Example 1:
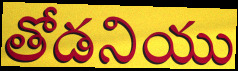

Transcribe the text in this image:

తోడనియు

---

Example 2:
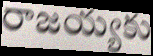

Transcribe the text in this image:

రాజయ్యకు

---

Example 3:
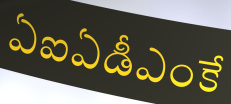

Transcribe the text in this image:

ఏఐఏడీఎంకే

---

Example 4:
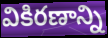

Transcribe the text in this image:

వికిరణాన్ని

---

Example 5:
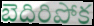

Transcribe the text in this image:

బెదిరిపోక